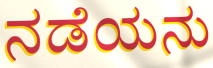
ನಡೆಯನು